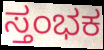
ಸ್ತಂಭಕ